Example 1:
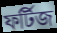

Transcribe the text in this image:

ফর্টিজ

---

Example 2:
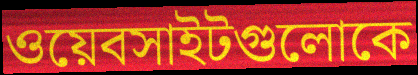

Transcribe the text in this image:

ওয়েবসাইটগুলোকে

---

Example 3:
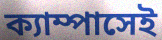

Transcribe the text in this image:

ক্যাম্পাসেই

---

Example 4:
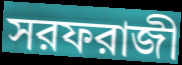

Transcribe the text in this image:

সরফরাজী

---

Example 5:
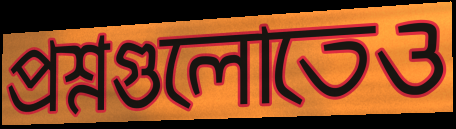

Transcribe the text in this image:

প্রশ্নগুলোতেও